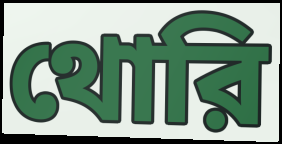
থোরি